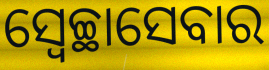
ସ୍ୱେଚ୍ଛାସେବାର